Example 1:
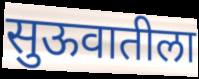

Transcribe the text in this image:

सुऊवातीला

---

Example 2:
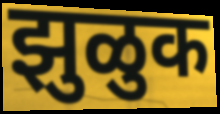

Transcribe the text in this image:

झुळुक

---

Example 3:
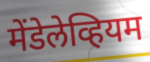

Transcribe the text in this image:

मेंडेलेव्हियम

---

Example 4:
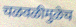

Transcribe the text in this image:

चळवळीमुळेच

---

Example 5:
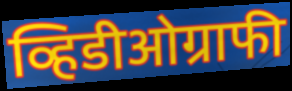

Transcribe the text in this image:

व्हिडीओग्राफी